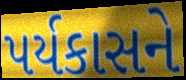
પર્યકાસને